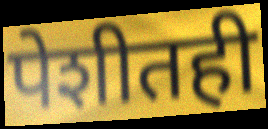
पेशीतही